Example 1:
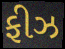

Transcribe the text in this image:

ફીઝ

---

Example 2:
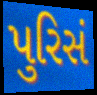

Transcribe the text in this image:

પુરિસં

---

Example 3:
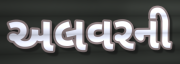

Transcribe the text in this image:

અલવરની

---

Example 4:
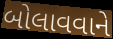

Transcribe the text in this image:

બોલાવવાને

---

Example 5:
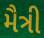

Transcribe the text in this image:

મૈત્રી